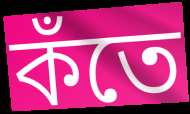
কঁতে